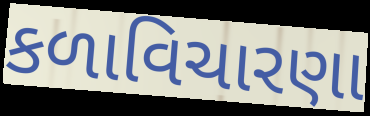
કળાવિચારણા